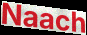
Naach